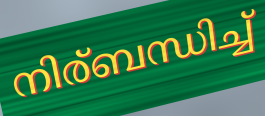
നിര്ബന്ധിച്ച്